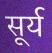
सूर्य